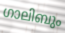
ഗാലിബും